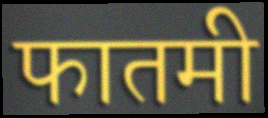
फातमी